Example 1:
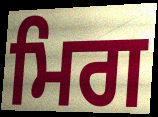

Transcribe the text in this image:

ਮਿਗ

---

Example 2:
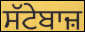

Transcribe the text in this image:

ਸੱਟੇਬਾਜ਼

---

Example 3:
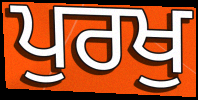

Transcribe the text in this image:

ਪੁਰਖੁ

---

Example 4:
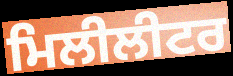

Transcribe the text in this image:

ਮਿਲੀਲੀਟਰ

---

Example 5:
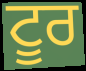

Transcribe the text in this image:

ਟੂਰ